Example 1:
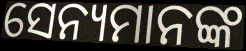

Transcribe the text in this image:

ସେନ୍ୟମାନଙ୍କ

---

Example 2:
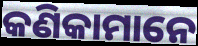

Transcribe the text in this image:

କଣିକାମାନେ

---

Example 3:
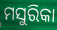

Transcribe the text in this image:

ମସୁରିକା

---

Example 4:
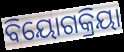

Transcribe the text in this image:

ବିୟୋଗକ୍ରିୟା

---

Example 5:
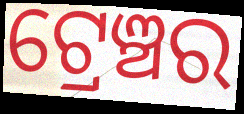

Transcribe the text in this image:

ଟ୍ରେଞ୍ଚର